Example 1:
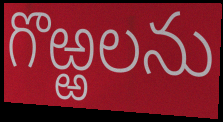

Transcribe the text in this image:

గొఱ్ఱలను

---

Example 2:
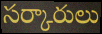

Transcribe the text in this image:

సర్కారులు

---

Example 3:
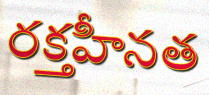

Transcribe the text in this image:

రక్తహీనత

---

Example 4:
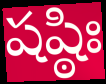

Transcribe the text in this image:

షష్ఠిః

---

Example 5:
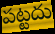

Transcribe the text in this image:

పట్టదు